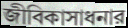
জীবিকাসাধনার